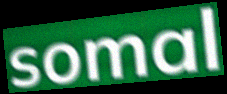
somal